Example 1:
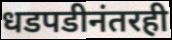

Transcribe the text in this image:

धडपडीनंतरही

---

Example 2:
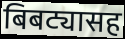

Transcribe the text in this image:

बिबट्यासह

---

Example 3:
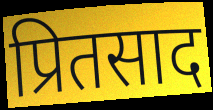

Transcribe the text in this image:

प्रितसाद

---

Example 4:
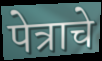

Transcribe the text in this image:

पेत्राचे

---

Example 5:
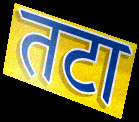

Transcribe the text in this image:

तटा